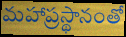
మహాప్రస్థానంతో